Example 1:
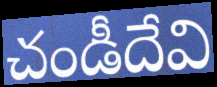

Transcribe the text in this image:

చండీదేవి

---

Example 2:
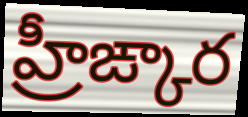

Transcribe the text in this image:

హ్రీఙ్కార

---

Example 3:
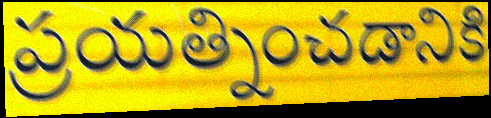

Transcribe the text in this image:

ప్రయత్నించడానికి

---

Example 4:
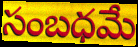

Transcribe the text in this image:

సంబధమే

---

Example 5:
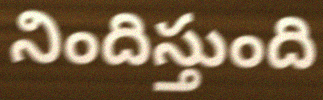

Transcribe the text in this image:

నిందిస్తుంది